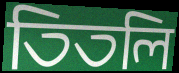
তিতলি